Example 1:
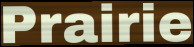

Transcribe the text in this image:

Prairie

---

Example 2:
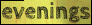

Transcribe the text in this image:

evenings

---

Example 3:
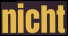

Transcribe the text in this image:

nicht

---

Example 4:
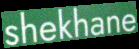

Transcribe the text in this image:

shekhane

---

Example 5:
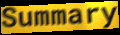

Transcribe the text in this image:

Summary